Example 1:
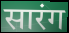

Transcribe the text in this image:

सारंग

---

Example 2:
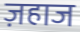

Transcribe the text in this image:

ज़हाज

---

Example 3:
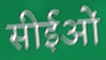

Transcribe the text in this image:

सीईओं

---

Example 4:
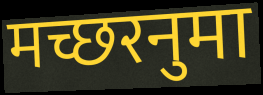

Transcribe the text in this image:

मच्छरनुमा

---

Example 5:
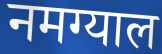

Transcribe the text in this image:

नमग्याल